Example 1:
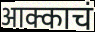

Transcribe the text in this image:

आक्काचं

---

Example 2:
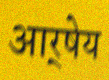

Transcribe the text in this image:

आर्षेय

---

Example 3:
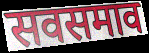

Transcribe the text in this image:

सवसमाव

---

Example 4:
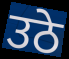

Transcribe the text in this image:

उठे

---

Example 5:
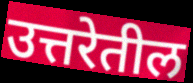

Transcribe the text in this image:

उत्तरेतील